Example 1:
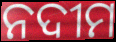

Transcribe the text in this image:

ନଦୀମ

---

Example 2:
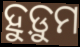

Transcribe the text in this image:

ହୁଡ଼ୁମ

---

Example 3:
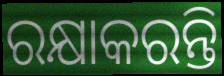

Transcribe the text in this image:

ରକ୍ଷାକରନ୍ତି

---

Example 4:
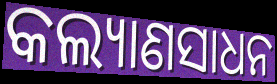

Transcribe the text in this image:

କଲ୍ୟାଣସାଧନ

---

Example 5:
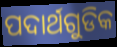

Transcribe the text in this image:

ପଦାର୍ଥଗୁଡିକ